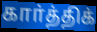
கார்த்திக்